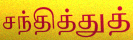
சந்தித்துத்